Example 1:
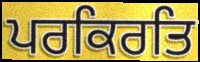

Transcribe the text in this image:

ਪਰਕਿਰਤਿ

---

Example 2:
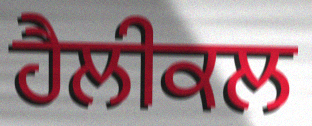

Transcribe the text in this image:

ਹੈਲੀਕਲ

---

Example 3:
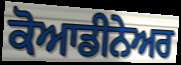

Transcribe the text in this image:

ਕੋਆਡੀਨੇਅਰ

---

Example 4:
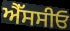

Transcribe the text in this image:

ਐੱਸਸੀਓ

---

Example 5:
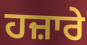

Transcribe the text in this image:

ਹਜ਼ਾਰੇ